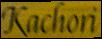
Kachori